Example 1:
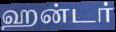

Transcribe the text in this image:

ஹன்டர்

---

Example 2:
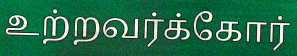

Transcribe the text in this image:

உற்றவர்க்கோர்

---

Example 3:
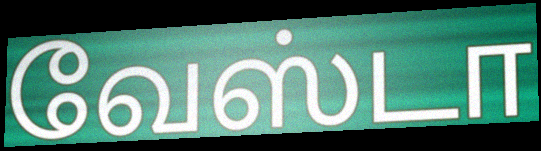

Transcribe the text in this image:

வேஸ்டா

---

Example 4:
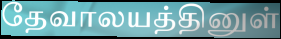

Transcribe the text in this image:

தேவாலயத்தினுள்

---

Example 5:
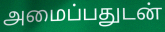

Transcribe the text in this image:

அமைப்பதுடன்